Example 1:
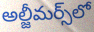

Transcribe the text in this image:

అల్జీమర్స్‌లో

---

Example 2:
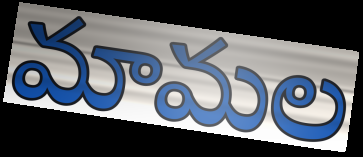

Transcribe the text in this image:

మామల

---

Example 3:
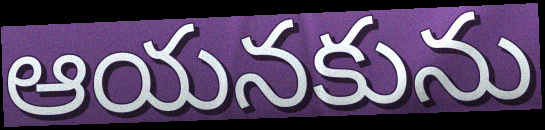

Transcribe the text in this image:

ఆయనకును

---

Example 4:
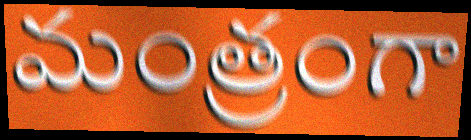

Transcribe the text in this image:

మంత్రంగా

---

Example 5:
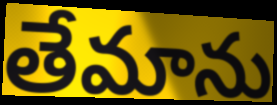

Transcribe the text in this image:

తేమాను